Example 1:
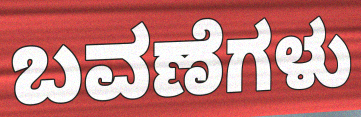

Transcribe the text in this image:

ಬವಣೆಗಳು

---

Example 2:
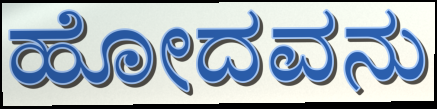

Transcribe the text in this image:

ಹೋದವನು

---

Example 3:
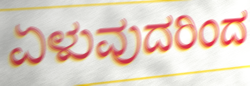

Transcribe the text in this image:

ಏಳುವುದರಿಂದ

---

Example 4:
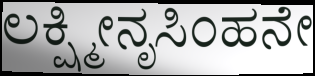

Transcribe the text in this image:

ಲಕ್ಷ್ಮೀನೃಸಿಂಹನೇ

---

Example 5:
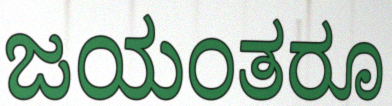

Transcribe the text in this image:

ಜಯಂತರೂ